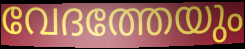
വേദത്തേയും